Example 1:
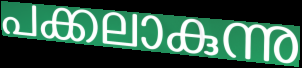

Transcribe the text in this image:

പക്കലാകുന്നു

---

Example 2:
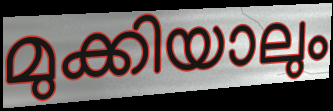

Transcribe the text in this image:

മുക്കിയാലും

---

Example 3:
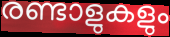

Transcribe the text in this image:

രണ്ടാളുകളും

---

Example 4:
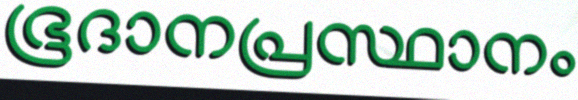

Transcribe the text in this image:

ഭൂദാനപ്രസ്ഥാനം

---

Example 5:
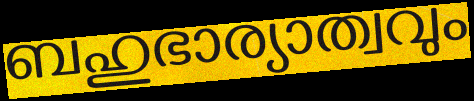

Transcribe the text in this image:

ബഹുഭാര്യാത്വവും